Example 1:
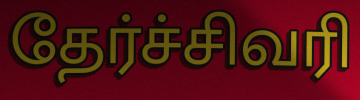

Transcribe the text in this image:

தேர்ச்சிவரி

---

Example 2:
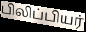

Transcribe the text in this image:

பிலிப்பியர்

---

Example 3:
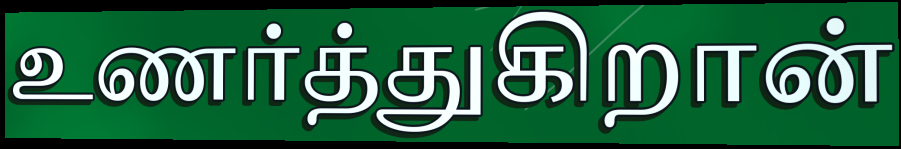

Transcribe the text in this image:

உணர்த்துகிறான்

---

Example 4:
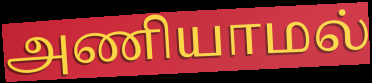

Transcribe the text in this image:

அணியாமல்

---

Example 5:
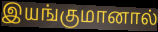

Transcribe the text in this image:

இயங்குமானால்